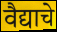
वैद्याचे